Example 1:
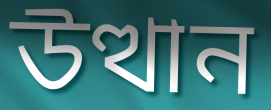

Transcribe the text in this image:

উত্থান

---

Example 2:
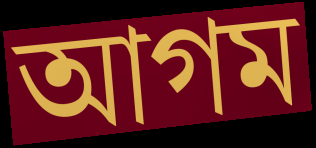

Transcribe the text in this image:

আগম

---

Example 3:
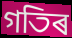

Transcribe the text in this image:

গতিৰ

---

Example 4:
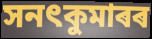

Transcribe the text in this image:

সনৎকুমাৰৰ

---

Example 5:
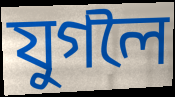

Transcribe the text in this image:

যুগলৈ